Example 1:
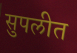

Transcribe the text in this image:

सुपलीत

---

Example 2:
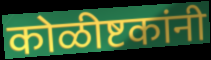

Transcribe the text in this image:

कोळीष्टकांनी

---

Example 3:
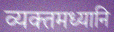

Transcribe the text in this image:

व्यक्तमध्यानि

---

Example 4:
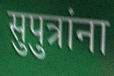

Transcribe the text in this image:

सुपुत्रांना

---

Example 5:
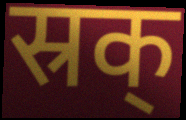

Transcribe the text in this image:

स्रक्